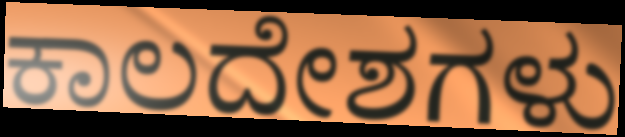
ಕಾಲದೇಶಗಳು